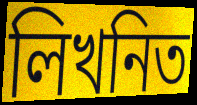
লিখনিত